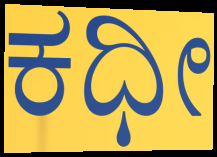
ಕಧೀ